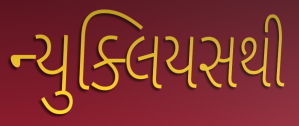
ન્યુક્લિયસથી